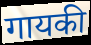
गायकी